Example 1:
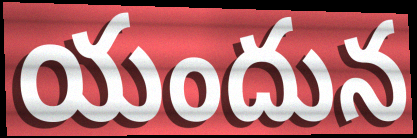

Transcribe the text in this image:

యందున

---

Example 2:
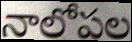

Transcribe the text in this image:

నాలోపల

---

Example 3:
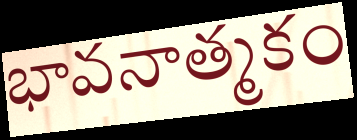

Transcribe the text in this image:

భావనాత్మకం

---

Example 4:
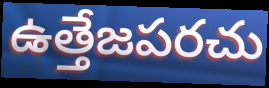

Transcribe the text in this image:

ఉత్తేజపరచు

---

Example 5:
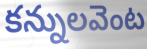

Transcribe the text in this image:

కన్నులవెంట